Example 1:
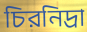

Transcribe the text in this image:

চিরনিদ্রা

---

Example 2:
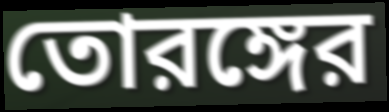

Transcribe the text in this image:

তোরঙ্গের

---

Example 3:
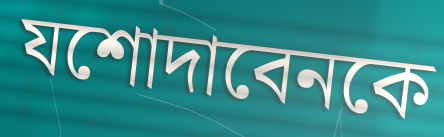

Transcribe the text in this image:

যশোদাবেনকে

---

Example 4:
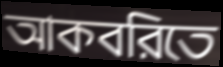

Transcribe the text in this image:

আকবরিতে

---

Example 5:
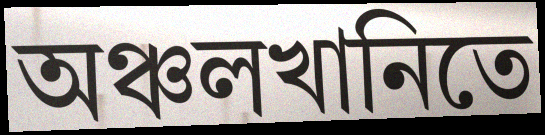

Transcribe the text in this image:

অঞ্চলখানিতে